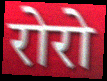
रोरो